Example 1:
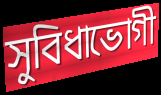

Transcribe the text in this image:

সুবিধাভোগী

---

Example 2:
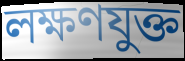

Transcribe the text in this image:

লক্ষণযুক্ত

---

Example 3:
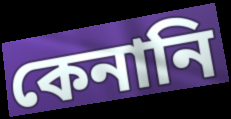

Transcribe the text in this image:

কেনানি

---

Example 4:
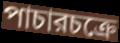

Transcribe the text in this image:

পাচারচক্রে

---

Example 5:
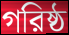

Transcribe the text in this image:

গরিষ্ঠ